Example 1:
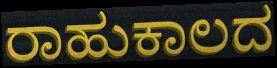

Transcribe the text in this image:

ರಾಹುಕಾಲದ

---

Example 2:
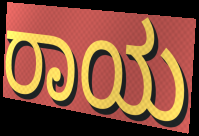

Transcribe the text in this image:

ರಾಯ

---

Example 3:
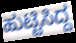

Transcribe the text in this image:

ಹುಟ್ಟಿಸಿದ್ದ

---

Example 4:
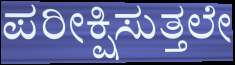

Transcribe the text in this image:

ಪರೀಕ್ಷಿಸುತ್ತಲೇ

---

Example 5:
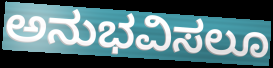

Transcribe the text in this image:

ಅನುಭವಿಸಲೂ